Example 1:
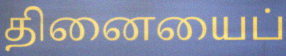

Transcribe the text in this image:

தினையைப்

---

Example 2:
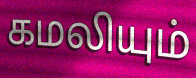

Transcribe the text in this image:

கமலியும்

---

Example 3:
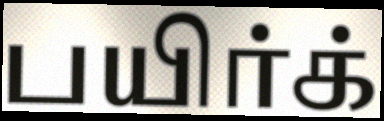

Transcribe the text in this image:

பயிர்க்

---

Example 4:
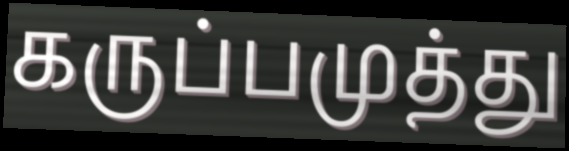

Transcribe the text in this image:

கருப்பமுத்து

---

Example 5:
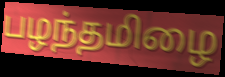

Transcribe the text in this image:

பழந்தமிழை